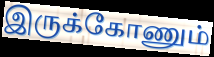
இருக்கோணும்